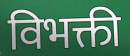
विभक्ती